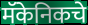
मॅकेनिकचे